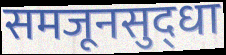
समजूनसुद्धा